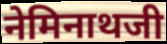
नेमिनाथजी